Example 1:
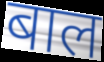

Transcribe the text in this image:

बाल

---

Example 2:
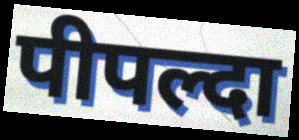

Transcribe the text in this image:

पीपल्दा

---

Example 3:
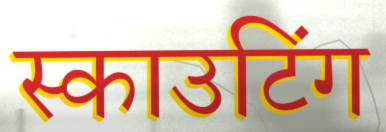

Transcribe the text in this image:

स्काउटिंग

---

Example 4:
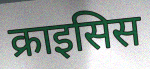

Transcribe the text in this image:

क्राइसिस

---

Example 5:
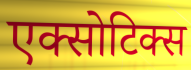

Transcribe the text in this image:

एक्सोटिक्स